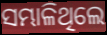
ସମ୍ଭାଳିଥିଲେ